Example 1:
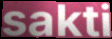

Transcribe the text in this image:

sakti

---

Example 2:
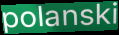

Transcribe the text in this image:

polanski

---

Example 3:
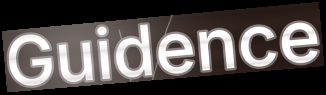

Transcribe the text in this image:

Guidence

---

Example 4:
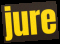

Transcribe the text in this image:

jure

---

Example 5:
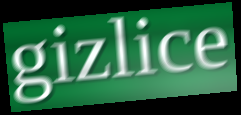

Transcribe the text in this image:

gizlice